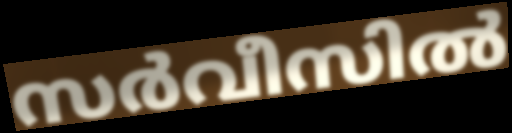
സർവീസിൽ